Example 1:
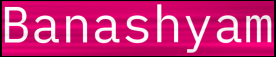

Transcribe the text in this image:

Banashyam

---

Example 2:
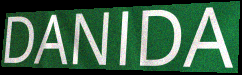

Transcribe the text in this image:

DANIDA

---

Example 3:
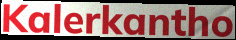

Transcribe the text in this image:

Kalerkantho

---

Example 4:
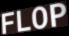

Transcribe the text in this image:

FLOP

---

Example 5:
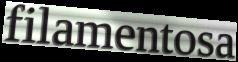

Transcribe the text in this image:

filamentosa